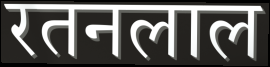
रतनलाल